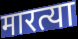
मारत्या